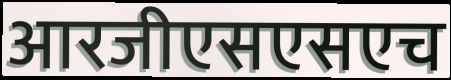
आरजीएसएसएच